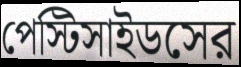
পেস্টিসাইডসের